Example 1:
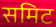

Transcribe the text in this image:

समिट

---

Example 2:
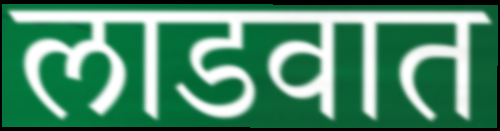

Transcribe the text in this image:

लाडवात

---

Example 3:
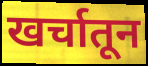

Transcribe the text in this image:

खर्चातून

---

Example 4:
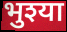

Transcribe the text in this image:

भुश्या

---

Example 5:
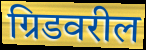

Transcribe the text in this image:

ग्रिडवरील